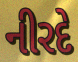
નીરદે